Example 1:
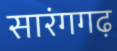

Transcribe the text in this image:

सारंगगढ़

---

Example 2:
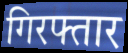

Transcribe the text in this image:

गिरफ्‍तार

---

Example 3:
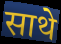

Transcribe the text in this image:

साथे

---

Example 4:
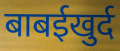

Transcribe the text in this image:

बाबईखुर्द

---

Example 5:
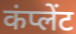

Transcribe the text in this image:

कंप्लेंट